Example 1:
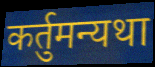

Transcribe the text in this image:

कर्तुमन्यथा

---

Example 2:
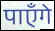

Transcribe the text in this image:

पाएँगे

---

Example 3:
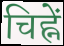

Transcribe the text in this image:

चिह्नें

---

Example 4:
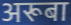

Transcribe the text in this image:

अरूबा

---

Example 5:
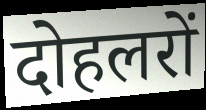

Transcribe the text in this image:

दोहलरों